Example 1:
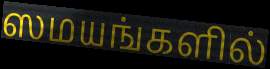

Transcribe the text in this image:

ஸமயங்களில்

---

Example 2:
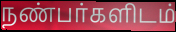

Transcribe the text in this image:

நண்பர்களிடம்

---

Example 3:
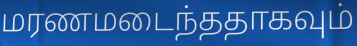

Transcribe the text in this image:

மரணமடைந்ததாகவும்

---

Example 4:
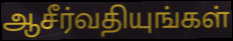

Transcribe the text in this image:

ஆசீர்வதியுங்கள்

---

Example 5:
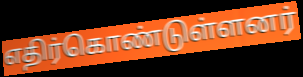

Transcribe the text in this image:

எதிர்கொண்டுள்ளனர்